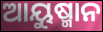
ଆୟୁଷ୍ମାନ